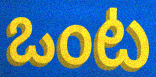
ఒంట